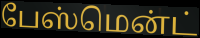
பேஸ்மென்ட்